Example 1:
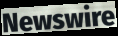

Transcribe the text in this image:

Newswire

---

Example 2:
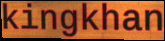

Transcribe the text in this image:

kingkhan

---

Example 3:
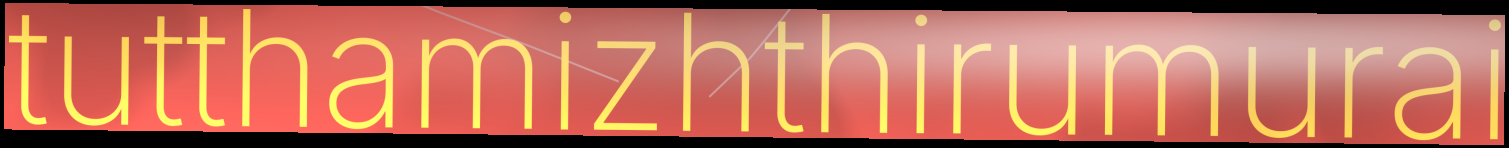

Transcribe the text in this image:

tutthamizhthirumurai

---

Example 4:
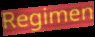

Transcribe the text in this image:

Regimen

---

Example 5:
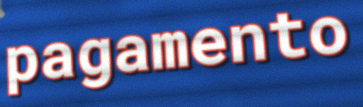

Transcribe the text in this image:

pagamento